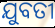
ଯୁବତୀ